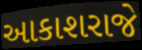
આકાશરાજે